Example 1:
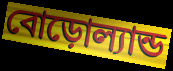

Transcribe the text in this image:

বোড়োল্যান্ড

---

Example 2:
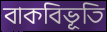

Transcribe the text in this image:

বাকবিভূতি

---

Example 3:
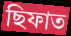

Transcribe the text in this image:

ছিফাত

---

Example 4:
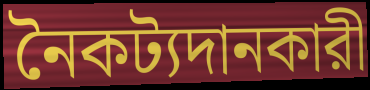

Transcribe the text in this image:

নৈকট্যদানকারী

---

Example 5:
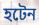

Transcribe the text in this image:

হটেন